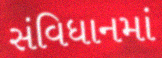
સંવિધાનમાં